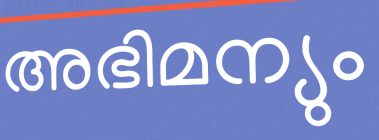
അഭിമന്യും